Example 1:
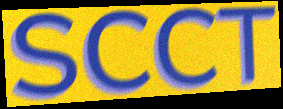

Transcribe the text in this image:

SCCT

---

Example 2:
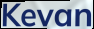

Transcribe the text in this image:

Kevan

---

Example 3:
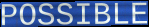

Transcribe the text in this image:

POSSIBLE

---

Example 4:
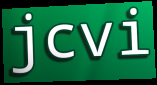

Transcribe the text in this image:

jcvi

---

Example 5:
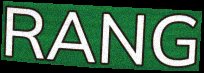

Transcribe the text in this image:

RANG